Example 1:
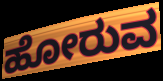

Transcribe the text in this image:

ಹೋರುವ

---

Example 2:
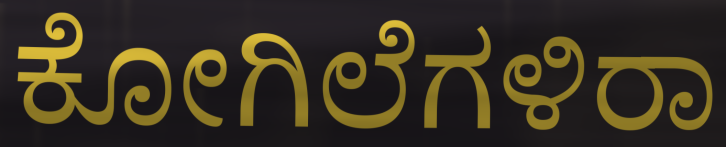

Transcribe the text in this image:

ಕೋಗಿಲೆಗಳಿರಾ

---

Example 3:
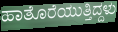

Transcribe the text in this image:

ಹಾತೊರೆಯುತ್ತಿದ್ದಳು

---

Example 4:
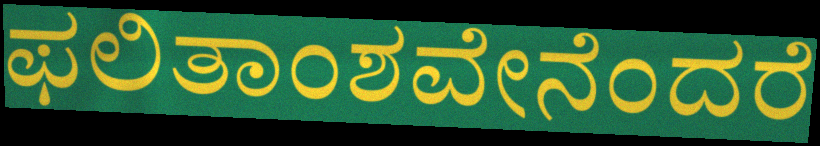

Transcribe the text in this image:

ಫಲಿತಾಂಶವೇನೆಂದರೆ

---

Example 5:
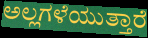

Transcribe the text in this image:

ಅಲ್ಲಗಳೆಯುತ್ತಾರೆ